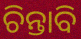
ଚିନ୍ତାବି